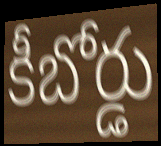
కీబోర్డు